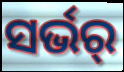
ସର୍ଭର୍